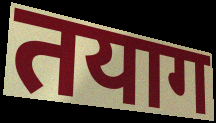
तयाग